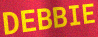
DEBBIE